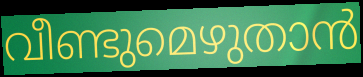
വീണ്ടുമെഴുതാൻ